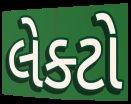
લેક્ટો